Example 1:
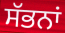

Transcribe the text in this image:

ਸੱਭਨਾਂ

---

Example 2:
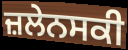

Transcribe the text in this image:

ਜ਼ਲੇਨਸਕੀ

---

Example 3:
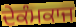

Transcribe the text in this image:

ਦੇਕੰਮਕਾਜ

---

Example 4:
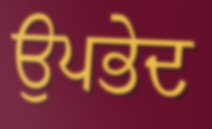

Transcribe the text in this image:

ਉਪਭੇਦ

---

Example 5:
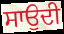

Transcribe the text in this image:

ਸਾਉਦੀ